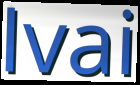
Ivai